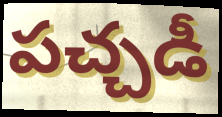
పచ్చడీ